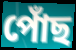
পোঁছ